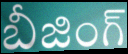
బీజింగ్